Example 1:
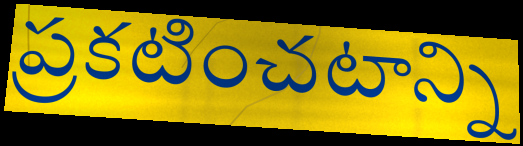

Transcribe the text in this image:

ప్రకటించటాన్ని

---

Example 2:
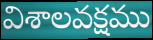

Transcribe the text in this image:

విశాలవక్షము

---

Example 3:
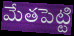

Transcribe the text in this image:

మేతపెట్టి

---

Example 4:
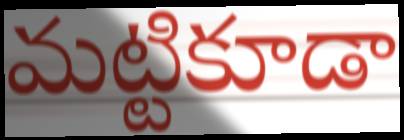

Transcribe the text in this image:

మట్టికూడా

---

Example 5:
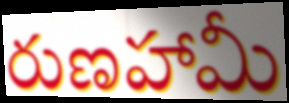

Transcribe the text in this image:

రుణహామీ